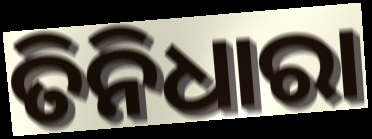
ତିନିଧାରା